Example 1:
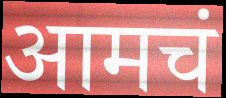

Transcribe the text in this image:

आमचं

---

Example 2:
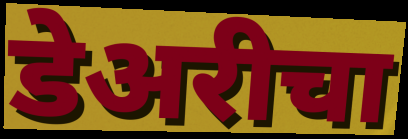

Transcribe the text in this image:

डेअरीचा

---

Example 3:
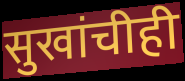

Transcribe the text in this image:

सुखांचीही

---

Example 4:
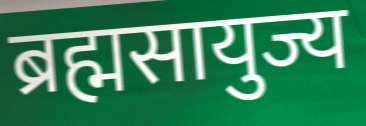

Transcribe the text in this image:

ब्रह्मसायुज्य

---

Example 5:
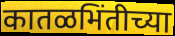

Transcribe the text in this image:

कातळभिंतीच्या